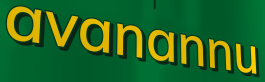
avanannu